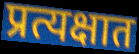
प्रत्यक्षात